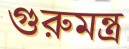
গুরুমন্ত্র